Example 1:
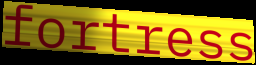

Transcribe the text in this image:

fortress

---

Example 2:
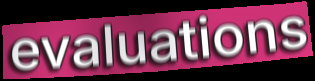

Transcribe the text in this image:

evaluations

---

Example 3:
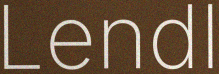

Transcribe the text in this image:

Lendl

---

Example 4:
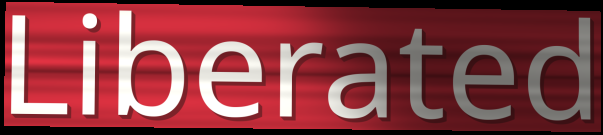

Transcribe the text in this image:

Liberated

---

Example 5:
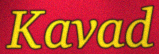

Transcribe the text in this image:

Kavad